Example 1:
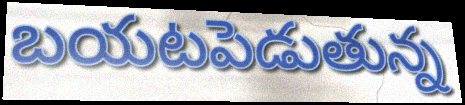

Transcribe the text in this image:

బయటపెడుతున్న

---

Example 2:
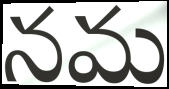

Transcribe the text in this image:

నమ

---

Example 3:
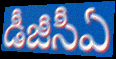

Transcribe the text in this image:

డీజీసీఏ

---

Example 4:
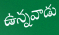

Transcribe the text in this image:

ఉన్నవాడు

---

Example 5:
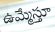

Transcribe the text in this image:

ఉమ్మేస్తూ